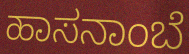
ಹಾಸನಾಂಬೆ